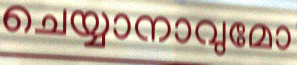
ചെയ്യാനാവുമോ